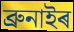
ব্ৰুনাইৰ